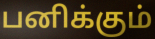
பனிக்கும்